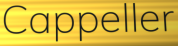
Cappeller